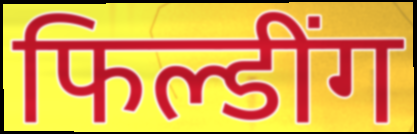
फिल्डींग